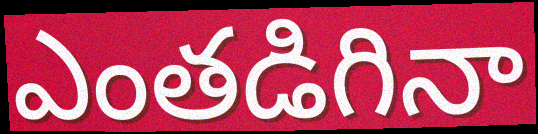
ఎంతడిగినా